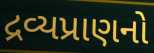
દ્રવ્યપ્રાણનો